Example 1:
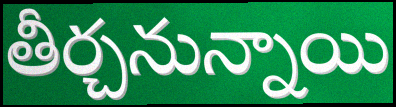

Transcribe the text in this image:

తీర్చనున్నాయి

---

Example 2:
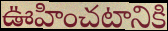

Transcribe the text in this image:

ఊహించటానికి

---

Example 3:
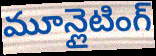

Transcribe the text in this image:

మూన్లైటింగ్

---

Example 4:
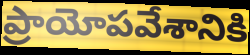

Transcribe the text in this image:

ప్రాయోపవేశానికి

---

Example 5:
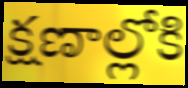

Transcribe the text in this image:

క్షణాల్లోకి